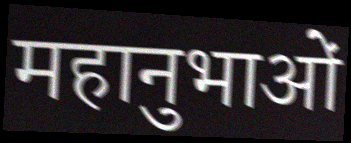
महानुभाओं